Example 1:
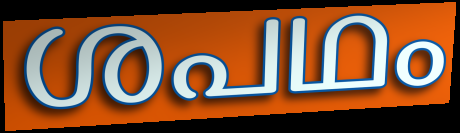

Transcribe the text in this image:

ശപഥം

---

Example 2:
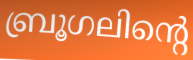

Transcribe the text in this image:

ബ്രൂഗലിന്റെ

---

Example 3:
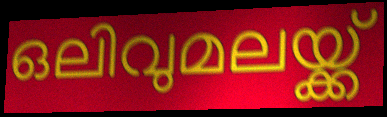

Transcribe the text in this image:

ഒലിവുമലയ്ക്ക്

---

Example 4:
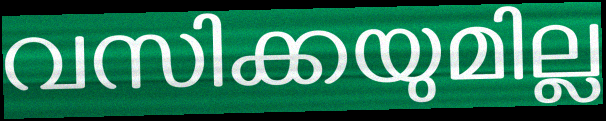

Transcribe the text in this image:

വസിക്കയുമില്ല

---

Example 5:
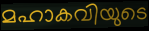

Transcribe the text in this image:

മഹാകവിയുടെ